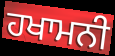
ਹਖਾਮਨੀ